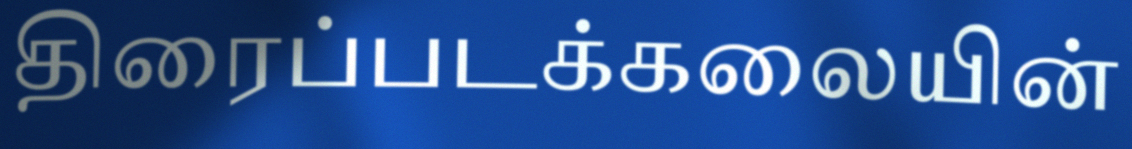
திரைப்படக்கலையின்